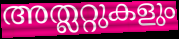
അത്ലറ്റുകളും